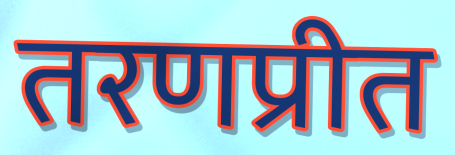
तरणप्रीत